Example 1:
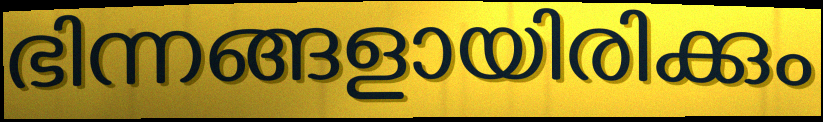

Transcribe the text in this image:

ഭിന്നങ്ങളായിരിക്കും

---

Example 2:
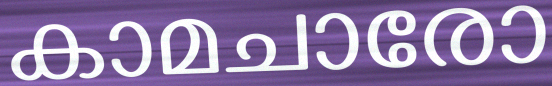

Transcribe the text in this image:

കാമചാരോ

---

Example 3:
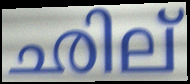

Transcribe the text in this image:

ഛില്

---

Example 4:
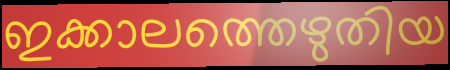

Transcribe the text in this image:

ഇക്കാലത്തെഴുതിയ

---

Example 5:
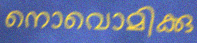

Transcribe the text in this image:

നൊവൊമിക്കു